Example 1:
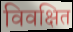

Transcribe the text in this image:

विवक्षित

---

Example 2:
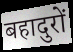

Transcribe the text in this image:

बहादुरों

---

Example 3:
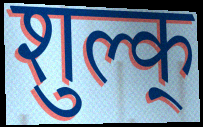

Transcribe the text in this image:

शुल्क्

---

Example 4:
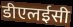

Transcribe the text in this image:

डीएलईसी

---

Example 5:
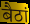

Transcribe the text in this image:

बैठां